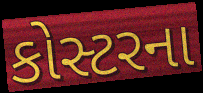
કોસ્ટરના